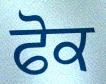
ਫੋਕ